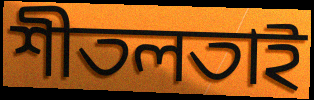
শীতলতাই